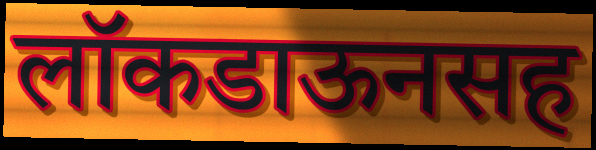
लॉकडाऊनसह